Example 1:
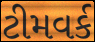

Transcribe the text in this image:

ટીમવર્ક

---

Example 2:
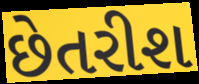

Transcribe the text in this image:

છેતરીશ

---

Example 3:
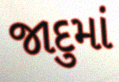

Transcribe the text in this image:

જાદુમાં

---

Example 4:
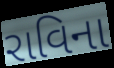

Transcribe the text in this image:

રાવિના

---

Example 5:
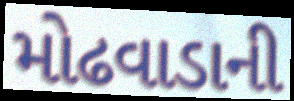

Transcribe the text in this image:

મોઢવાડાની